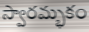
స్వారమ్భకం